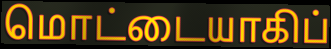
மொட்டையாகிப்